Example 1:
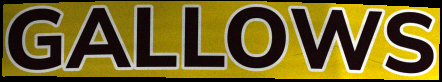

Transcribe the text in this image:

GALLOWS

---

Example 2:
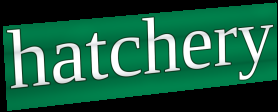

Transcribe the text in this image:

hatchery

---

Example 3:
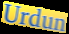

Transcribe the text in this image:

Urdun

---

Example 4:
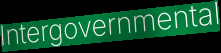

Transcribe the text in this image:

Intergovernmental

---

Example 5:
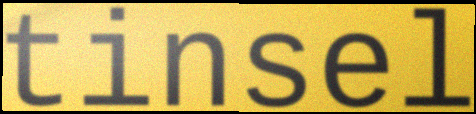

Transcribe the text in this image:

tinsel